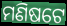
ମଣିଷଟେ